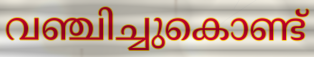
വഞ്ചിച്ചുകൊണ്ട്